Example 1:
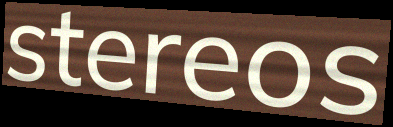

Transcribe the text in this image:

stereos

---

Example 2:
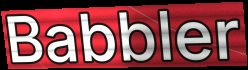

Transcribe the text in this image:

Babbler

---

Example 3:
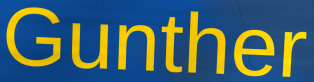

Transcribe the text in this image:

Gunther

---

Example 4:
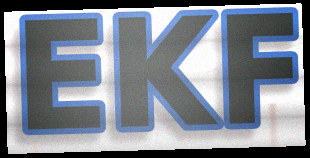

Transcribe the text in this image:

EKF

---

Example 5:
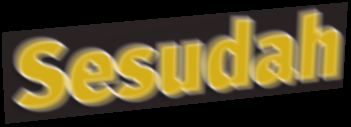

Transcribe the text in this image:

Sesudah